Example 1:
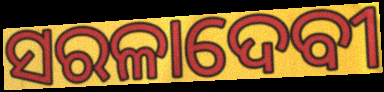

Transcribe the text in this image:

ସରଳାଦେବୀ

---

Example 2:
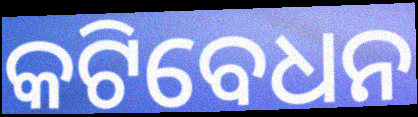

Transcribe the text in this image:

କଟିବେଧନ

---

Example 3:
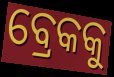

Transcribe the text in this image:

ବ୍ରେକକୁ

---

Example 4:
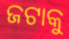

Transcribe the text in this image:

ଜଟାକୁ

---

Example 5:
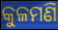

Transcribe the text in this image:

କୁଳମଣି